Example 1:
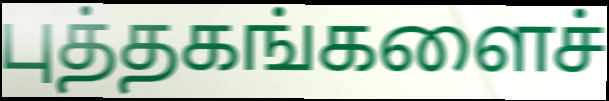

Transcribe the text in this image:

புத்தகங்களைச்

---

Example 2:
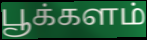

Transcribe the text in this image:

பூக்களம்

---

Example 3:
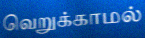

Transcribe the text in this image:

வெறுக்காமல்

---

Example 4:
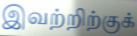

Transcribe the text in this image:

இவற்றிற்குக்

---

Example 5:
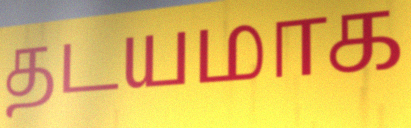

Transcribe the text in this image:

தடயமாக